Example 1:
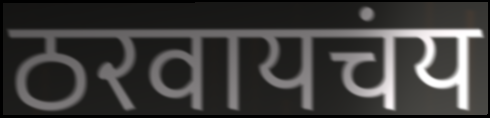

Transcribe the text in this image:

ठरवायचंय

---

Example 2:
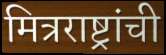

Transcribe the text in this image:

मित्रराष्ट्रांची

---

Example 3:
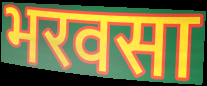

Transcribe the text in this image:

भरवसा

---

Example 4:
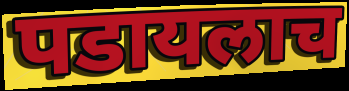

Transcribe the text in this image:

पडायलाच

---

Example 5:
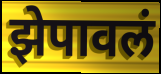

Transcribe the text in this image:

झेपावलं